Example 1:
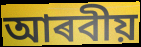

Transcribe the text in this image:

আৰবীয়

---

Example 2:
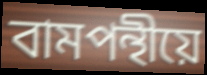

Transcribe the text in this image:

বামপন্থীয়ে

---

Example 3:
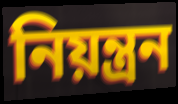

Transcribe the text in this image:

নিয়ন্ত্ৰন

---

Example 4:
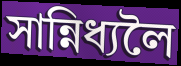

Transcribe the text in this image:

সান্নিধ্যলৈ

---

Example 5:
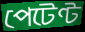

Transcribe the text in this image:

পেটেণ্ট